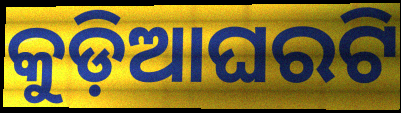
କୁଡ଼ିଆଘରଟି